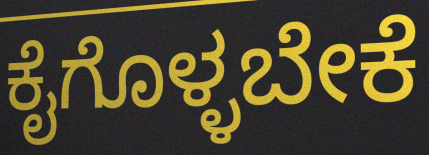
ಕೈಗೊಳ್ಳಬೇಕೆ